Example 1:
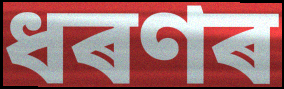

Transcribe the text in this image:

ধৰণৰ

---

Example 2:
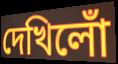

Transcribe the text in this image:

দেখিলোঁ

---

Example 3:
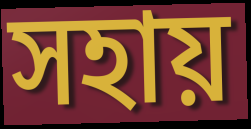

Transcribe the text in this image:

সহায়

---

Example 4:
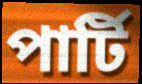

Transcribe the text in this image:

পাৰ্টি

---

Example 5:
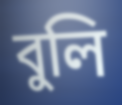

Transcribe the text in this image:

বুলি